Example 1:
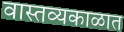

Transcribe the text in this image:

वास्तव्यकाळात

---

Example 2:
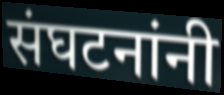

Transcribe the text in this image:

संघटनांनी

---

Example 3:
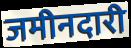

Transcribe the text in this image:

जमीनदारी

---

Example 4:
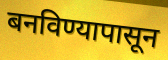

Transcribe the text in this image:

बनविण्यापासून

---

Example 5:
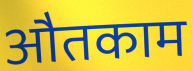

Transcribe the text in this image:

औतकाम